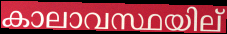
കാലാവസ്ഥയില്